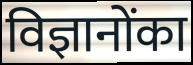
विज्ञानोंका